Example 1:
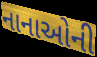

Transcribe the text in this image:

નાનાઓની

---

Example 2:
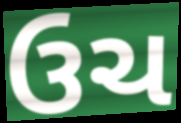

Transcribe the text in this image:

ઉચ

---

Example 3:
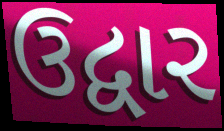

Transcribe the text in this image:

ઉદ્વાર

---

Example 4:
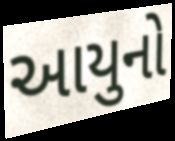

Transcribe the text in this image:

આયુનો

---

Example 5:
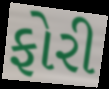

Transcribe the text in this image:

ફોરી